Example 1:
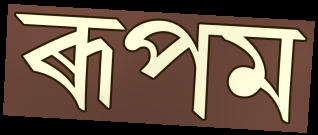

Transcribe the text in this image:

ৰূপম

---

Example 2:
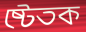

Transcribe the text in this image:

ষ্টেতক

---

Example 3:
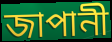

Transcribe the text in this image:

জাপানী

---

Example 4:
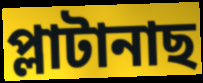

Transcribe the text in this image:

প্লাটানাছ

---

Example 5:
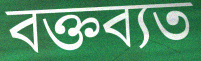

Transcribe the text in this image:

বক্তব্যত